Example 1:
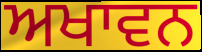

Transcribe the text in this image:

ਅਖਾਵਨ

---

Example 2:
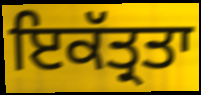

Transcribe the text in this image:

ਇਕੱਤ੍ਰਤਾ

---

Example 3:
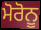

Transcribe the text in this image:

ਮੋਰੋਨੂ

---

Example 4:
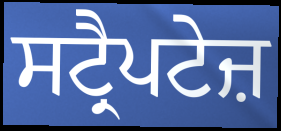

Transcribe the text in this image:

ਸਟ੍ਰੈਪਟੇਜ਼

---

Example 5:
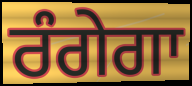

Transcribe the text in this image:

ਰੰਗੇਗਾ